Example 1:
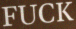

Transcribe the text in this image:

FUCK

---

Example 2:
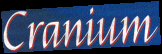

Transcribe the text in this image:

Cranium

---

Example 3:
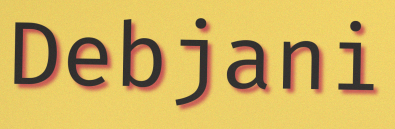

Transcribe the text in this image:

Debjani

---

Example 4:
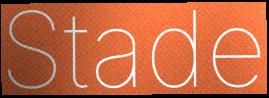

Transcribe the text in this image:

Stade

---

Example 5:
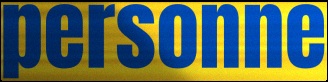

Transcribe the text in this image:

personne